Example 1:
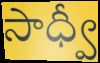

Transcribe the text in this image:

సాధ్వీ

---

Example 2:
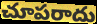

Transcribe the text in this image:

చూపరాదు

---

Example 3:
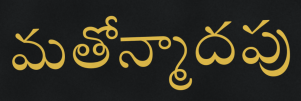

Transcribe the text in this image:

మతోన్మాదపు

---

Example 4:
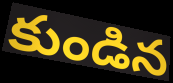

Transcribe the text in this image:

కుండిన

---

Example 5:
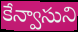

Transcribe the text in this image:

కేన్వాసుని